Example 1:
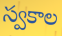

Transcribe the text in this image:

స్వకాల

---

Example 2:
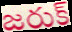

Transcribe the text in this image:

జరుక్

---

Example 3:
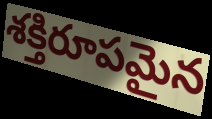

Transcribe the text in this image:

శక్తిరూపమైన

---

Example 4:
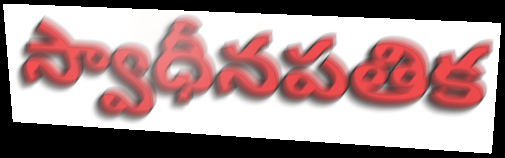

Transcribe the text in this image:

స్వాధీనపతిక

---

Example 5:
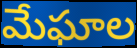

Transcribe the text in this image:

మేఘాల